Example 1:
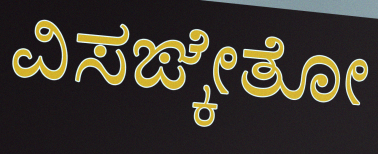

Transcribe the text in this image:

ವಿಸಙ್ಕೇತೋ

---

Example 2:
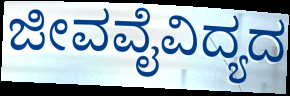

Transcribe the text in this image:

ಜೀವವೈವಿದ್ಯದ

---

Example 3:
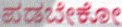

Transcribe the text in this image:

ಪಡಬೇಕೋ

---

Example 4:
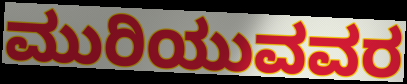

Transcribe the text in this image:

ಮುರಿಯುವವರ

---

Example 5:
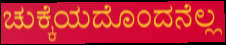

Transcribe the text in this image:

ಚುಕ್ಕೆಯದೊಂದನೆಲ್ಲ